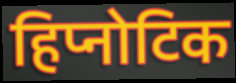
हिप्नोटिक